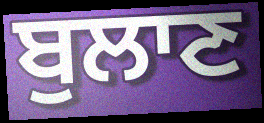
ਬੁਲਾਣ